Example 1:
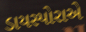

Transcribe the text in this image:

ડાયસ્પોરાએ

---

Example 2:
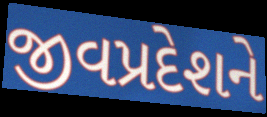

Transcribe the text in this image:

જીવપ્રદેશને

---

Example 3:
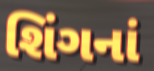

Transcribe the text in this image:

શિંગનાં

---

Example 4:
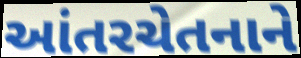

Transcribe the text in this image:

આંતરચેતનાને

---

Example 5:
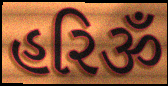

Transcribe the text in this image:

હરિૐ